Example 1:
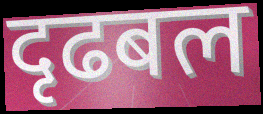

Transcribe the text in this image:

दृढबल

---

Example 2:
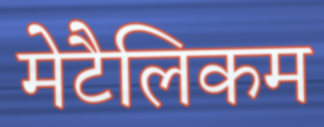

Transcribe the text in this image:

मेटैलिकम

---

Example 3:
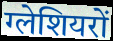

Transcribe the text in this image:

ग्‍लेशियरों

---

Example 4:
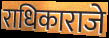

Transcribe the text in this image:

राधिकाराजे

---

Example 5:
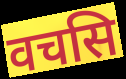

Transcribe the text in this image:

वचसि